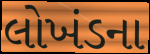
લોખંડના